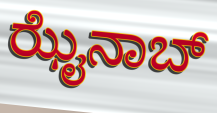
ಝೈನಾಬ್